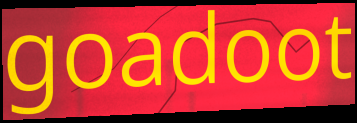
goadoot